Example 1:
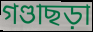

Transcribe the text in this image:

গণ্ডাছড়া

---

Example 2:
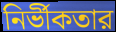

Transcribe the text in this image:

নির্ভীকতার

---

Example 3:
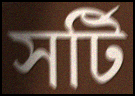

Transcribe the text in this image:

সর্টি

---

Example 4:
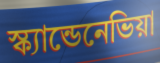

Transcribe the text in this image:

স্ক্যান্ডেনেভিয়া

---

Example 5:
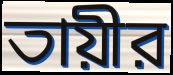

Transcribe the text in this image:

তায়ীর